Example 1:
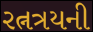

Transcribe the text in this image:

રત્નત્રયની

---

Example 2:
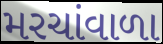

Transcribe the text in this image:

મરચાંવાળા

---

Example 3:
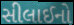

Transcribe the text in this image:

સીલાઈનો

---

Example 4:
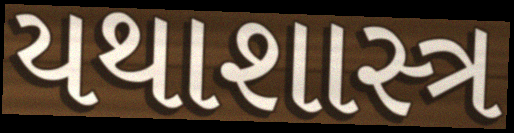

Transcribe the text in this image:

યથાશાસ્‍ત્ર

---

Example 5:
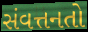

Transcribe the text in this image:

સંવત્તનતો